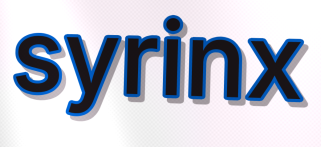
syrinx